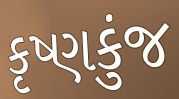
કૃષ્ણકુંજ